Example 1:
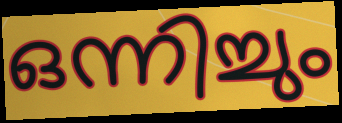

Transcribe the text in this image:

ഒന്നിച്ചും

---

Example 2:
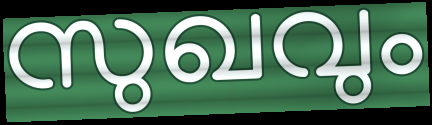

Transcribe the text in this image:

സുഖവും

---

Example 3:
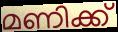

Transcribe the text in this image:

മണിക്ക്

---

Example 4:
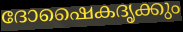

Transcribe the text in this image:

ദോഷൈകദൃക്കും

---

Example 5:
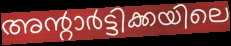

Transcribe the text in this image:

അന്റാർട്ടിക്കയിലെ